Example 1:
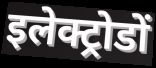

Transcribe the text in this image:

इलेक्ट्रोडों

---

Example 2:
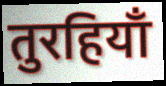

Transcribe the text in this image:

तुरहियाँ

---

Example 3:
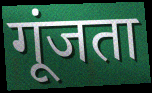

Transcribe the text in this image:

गूंजता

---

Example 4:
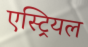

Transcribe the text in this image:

एस्ट्रियल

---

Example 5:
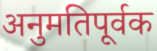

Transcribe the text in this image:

अनुमतिपूर्वक